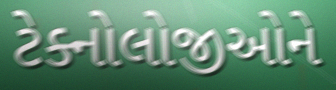
ટેક્નોલોજીઓને